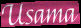
Usama